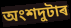
অংশদুটাৰ